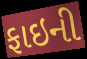
ફાઇની